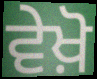
ਵੇਖ਼ੋ